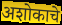
अशोकाचे